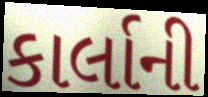
કાર્લાની